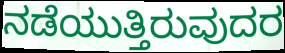
ನಡೆಯುತ್ತಿರುವುದರ